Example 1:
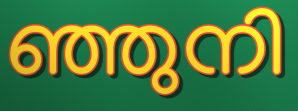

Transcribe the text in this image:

ഞ്ഞുനി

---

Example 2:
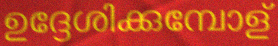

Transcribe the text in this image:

ഉദ്ദേശിക്കുമ്പോള്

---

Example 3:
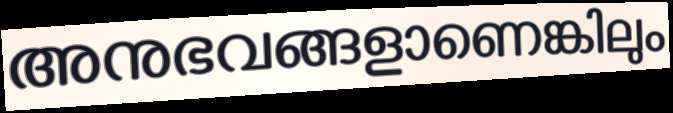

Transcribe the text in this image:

അനുഭവങ്ങളാണെങ്കിലും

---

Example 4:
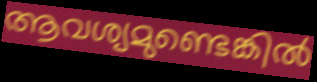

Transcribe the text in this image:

ആവശ്യമുണ്ടെങ്കിൽ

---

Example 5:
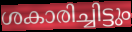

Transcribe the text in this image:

ശകാരിച്ചിട്ടും